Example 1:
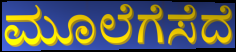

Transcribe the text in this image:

ಮೂಲೆಗೆಸೆದೆ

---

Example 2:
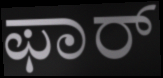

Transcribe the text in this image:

ಫಾರ್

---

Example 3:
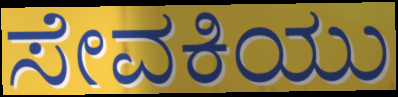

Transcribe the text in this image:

ಸೇವಕಿಯು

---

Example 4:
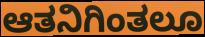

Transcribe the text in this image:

ಆತನಿಗಿಂತಲೂ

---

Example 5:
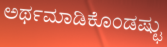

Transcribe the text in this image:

ಅರ್ಥಮಾಡಿಕೊಂಡಷ್ಟು